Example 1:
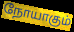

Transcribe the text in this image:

நோயாகும்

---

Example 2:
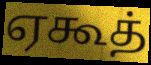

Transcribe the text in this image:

ஏகூத்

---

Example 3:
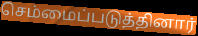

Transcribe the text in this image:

செம்மைப்படுத்தினார்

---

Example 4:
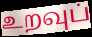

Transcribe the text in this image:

உறவுப்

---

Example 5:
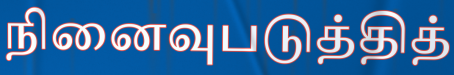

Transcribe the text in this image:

நினைவுபடுத்தித்